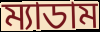
ম্যাডাম